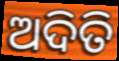
ଅଦିତି